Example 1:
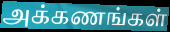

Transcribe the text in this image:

அக்கணங்கள்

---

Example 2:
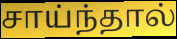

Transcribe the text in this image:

சாய்ந்தால்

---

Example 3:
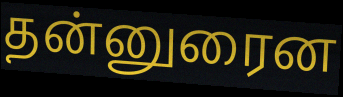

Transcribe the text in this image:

தன்னுரைன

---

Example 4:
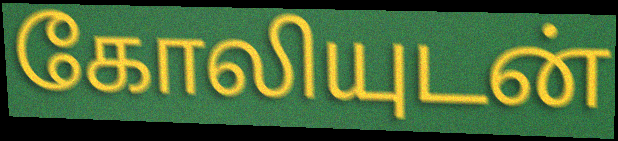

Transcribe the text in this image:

கோலியுடன்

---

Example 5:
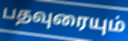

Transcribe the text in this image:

பதவுரையும்